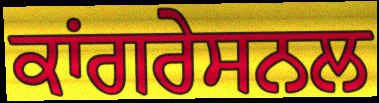
ਕਾਂਗਰੇਸਨਲ